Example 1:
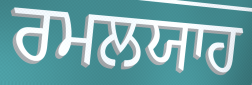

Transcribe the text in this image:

ਰਮਲਯਾਹ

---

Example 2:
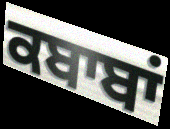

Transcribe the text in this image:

ਕਬਾਬਾਂ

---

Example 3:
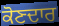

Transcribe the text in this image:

ਕੋਣਦਾਰ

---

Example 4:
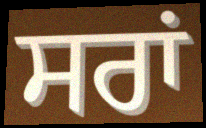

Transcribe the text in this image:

ਸਰਾਂ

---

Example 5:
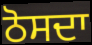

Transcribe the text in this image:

ਠੋਸਦਾ